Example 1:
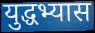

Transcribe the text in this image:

युद्धभ्यास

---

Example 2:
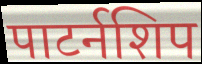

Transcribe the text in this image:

पाटर्नशिप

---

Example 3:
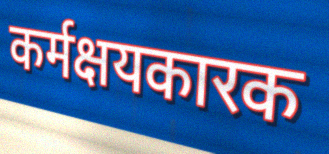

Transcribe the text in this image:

कर्मक्षयकारक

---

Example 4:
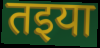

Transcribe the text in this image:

तइया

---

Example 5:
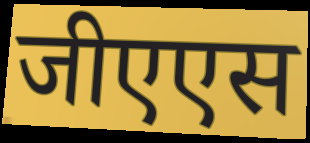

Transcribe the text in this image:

जीएएस